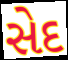
સેદ